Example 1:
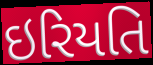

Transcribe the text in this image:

ઇરિયતિ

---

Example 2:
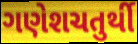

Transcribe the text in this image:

ગણેશચતુર્થી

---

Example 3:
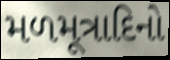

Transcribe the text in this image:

મળમૂત્રાદિનો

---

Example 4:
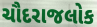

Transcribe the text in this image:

ચૌદરાજલોક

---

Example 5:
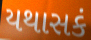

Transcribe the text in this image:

યથાસકં